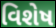
વિશેષ